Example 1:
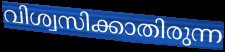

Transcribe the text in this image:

വിശ്വസിക്കാതിരുന്ന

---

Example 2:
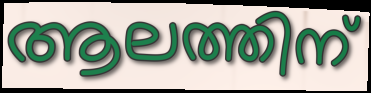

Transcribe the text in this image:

ആലത്തിന്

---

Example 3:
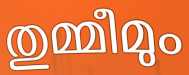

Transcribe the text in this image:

തുമ്മീമും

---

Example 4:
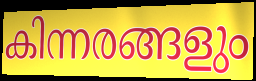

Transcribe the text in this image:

കിന്നരങ്ങളും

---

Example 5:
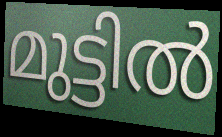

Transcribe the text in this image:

മുട്ടിൽ